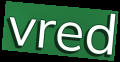
vred